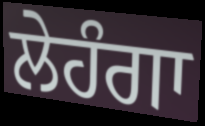
ਲੇਹੰਗਾ